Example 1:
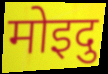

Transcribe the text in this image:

मोइदु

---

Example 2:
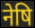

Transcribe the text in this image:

नेषि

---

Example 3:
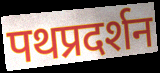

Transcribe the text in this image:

पथप्रदर्शन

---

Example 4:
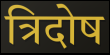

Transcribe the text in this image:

त्रिदोष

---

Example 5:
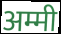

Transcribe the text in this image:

अम्मी